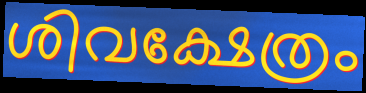
ശിവക്ഷേത്രം